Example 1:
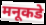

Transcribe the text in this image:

मनूकडे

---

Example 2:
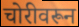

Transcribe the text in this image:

चोरीवरून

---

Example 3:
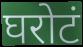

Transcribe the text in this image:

घरोटं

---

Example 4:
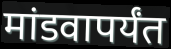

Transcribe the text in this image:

मांडवापर्यंत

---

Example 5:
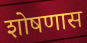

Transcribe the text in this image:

शोषणास